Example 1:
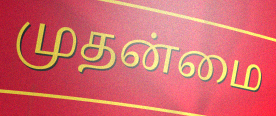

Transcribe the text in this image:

முதன்மை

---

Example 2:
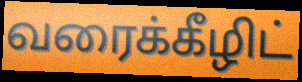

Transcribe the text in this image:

வரைக்கீழிட்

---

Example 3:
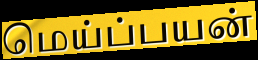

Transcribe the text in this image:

மெய்ப்பயன்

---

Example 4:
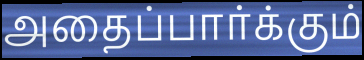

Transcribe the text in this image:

அதைப்பார்க்கும்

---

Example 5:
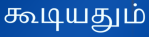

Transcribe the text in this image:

கூடியதும்